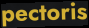
pectoris